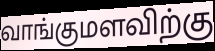
வாங்குமளவிற்கு